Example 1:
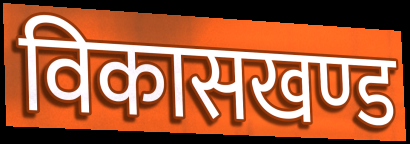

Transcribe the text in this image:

विकासखण्‍ड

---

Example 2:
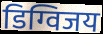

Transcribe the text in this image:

डिग्विजय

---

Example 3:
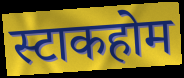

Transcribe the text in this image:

स्टाकहोम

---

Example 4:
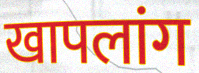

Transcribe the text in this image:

खापलांग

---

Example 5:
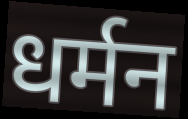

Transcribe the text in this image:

धर्मन